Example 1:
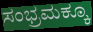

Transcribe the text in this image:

ಸಂಭ್ರಮಕ್ಕೂ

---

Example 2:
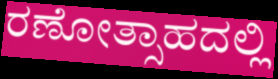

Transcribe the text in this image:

ರಣೋತ್ಸಾಹದಲ್ಲಿ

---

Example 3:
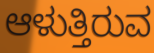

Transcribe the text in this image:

ಆಳುತ್ತಿರುವ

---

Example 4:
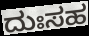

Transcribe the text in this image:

ದುಃಸಹ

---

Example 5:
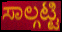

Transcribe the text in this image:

ಸಾಲ್ಗಟ್ಟಿ